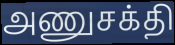
அணுசக்தி